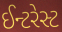
ઈન્ટરેસ્ટ